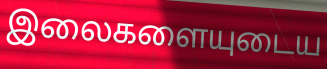
இலைகளையுடைய